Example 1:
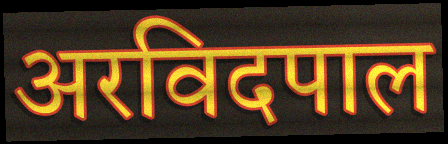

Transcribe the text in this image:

अरविदपाल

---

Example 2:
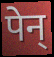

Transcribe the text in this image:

पेन्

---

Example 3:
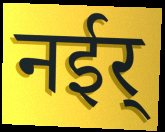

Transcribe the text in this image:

नईर्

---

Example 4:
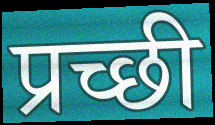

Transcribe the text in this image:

प्रच्छी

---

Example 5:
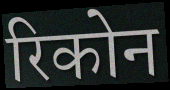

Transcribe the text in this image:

रिकोन